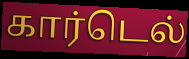
கார்டெல்